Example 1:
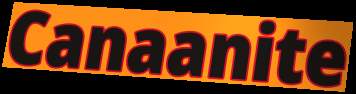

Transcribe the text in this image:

Canaanite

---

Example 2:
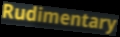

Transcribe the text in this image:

Rudimentary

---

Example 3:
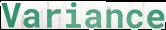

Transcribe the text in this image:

Variance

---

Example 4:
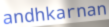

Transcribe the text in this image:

andhkarnan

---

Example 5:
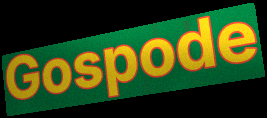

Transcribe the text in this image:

Gospode